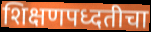
शिक्षणपध्दतीचा